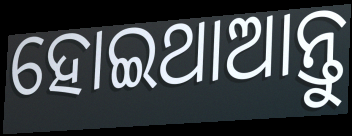
ହୋଇଥାଆନ୍ତୁ